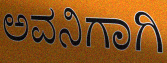
ಅವನಿಗಾಗಿ